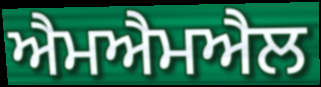
ਐਮਐਮਐਲ